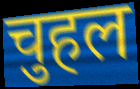
चुहल